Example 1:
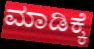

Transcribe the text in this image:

ಮಾಡಿಕ್ಕೆ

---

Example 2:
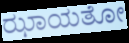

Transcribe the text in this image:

ಝಾಯತೋ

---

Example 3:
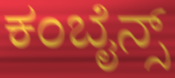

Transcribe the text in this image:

ಕಂಬೈನ್ಸ್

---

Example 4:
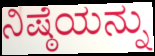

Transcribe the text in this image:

ನಿಷ್ಠೆಯನ್ನು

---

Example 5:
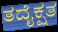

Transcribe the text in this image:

ತದೈಕ್ಷತ